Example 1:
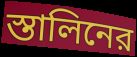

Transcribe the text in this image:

স্তালিনের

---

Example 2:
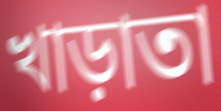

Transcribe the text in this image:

খাড়াতা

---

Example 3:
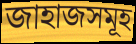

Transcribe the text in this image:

জাহাজসমূহ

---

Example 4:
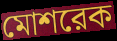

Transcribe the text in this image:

মোশরেক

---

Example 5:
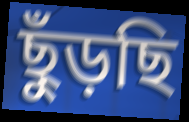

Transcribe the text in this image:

ছুঁড়ছি